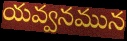
యవ్వనమున